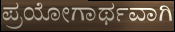
ಪ್ರಯೋಗಾರ್ಥವಾಗಿ